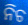
ନିଚ